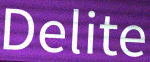
Delite